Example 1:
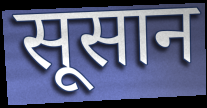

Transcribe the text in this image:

सूसान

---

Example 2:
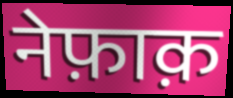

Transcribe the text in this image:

नेफ़ाक़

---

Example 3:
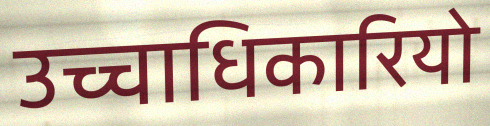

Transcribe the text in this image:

उच्चाधिकारियो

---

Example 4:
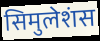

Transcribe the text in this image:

सिमुलेशंस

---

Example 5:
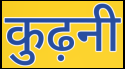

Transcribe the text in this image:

कुढ़नी